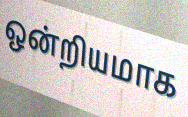
ஒன்றியமாக